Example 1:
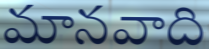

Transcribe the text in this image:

మానవాది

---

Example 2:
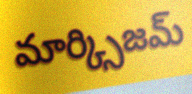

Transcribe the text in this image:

మార్క్సిజమ్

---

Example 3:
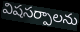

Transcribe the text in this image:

విషసర్పాలను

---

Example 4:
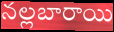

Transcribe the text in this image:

నల్లబారాయి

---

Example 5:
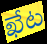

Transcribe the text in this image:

ఖేట